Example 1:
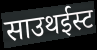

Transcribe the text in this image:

साउथईस्ट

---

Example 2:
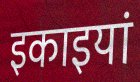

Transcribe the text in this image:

इकाइयां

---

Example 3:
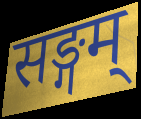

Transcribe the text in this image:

सङ्गम्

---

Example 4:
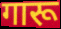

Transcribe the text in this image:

गारू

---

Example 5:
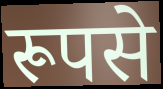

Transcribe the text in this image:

रूपसे